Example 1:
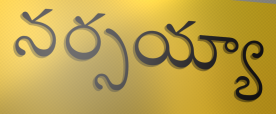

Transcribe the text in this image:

నర్సయ్యా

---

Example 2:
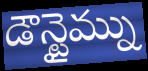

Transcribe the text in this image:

డౌన్టైమ్ను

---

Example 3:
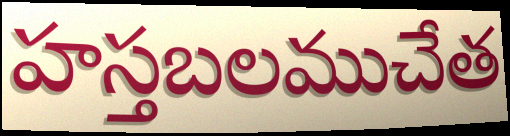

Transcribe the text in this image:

హస్తబలముచేత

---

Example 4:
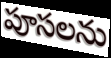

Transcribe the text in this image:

పూసలను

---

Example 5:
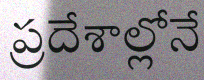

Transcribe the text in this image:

ప్రదేశాల్లోనే